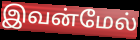
இவன்மேல்